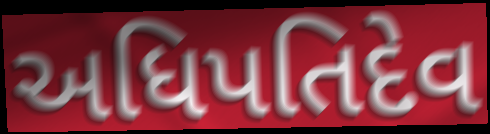
અધિપતિદેવ